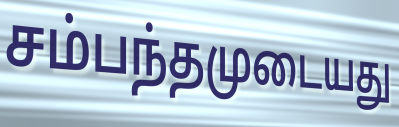
சம்பந்தமுடையது